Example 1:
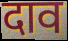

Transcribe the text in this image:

दाव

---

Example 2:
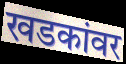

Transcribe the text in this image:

खडकांवर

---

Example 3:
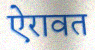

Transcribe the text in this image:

ऐरावत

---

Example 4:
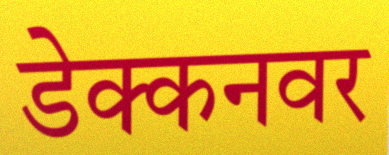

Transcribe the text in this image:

डेक्कनवर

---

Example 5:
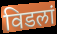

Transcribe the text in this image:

विडलां